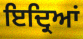
ਇਦ੍ਰਿਆਂ